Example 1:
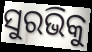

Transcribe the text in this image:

ସୁରଭିକୁ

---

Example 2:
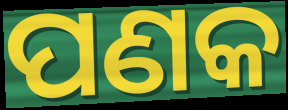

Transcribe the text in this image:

ପଣକ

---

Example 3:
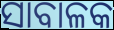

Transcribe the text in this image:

ସାବାଳକ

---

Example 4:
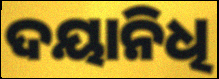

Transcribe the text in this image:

ଦୟାନିଧି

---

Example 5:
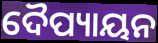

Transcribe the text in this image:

ଦୈପ୍ୟାୟନ